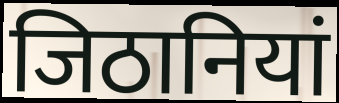
जिठानियां